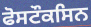
ਫੋਸਟੌਕਸਿਨ